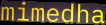
mimedha